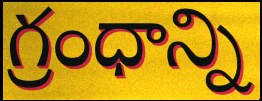
గ్రంధాన్ని